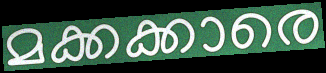
മക്കക്കാരെ